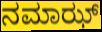
ನಮಾಝ್